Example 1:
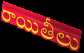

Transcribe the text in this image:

రాయితీలు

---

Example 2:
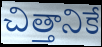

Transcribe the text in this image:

చిత్తానికే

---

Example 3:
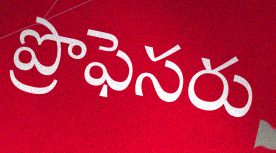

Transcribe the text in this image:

ప్రొఫెసరు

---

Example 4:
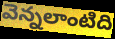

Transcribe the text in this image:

వెన్నలాంటిది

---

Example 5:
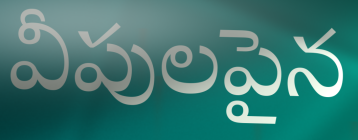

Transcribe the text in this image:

వీపులపైన